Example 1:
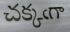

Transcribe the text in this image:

చక్కఁగా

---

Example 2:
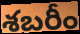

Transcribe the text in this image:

శబరీం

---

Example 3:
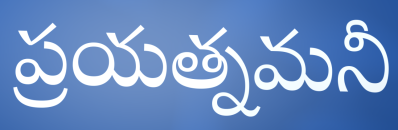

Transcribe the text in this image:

ప్రయత్నమనీ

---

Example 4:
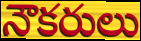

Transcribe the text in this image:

నౌకరులు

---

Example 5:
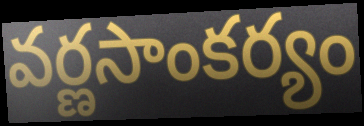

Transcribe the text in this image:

వర్ణసాంకర్యం